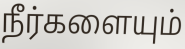
நீர்களையும்